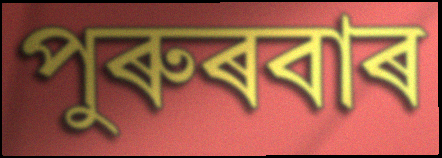
পুৰুৰবাৰ